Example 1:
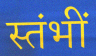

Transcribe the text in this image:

स्तंभीं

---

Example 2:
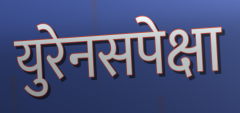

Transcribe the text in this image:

युरेनसपेक्षा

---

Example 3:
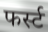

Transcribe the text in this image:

फर्स्ट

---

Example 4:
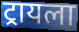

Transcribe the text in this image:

ट्रायला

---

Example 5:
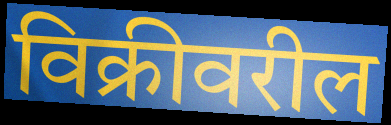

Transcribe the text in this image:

विक्रीवरील